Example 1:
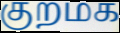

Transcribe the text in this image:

குறமக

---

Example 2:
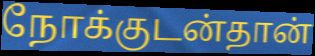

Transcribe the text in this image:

நோக்குடன்தான்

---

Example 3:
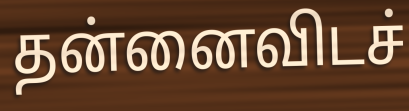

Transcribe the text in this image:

தன்னைவிடச்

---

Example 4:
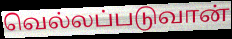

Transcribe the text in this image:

வெல்லப்படுவான்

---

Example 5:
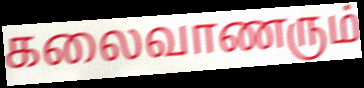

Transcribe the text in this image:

கலைவாணரும்